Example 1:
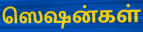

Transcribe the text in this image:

ஸெஷன்கள்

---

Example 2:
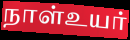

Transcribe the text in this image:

நாள்உயர்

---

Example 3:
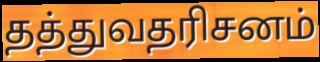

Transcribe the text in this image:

தத்துவதரிசனம்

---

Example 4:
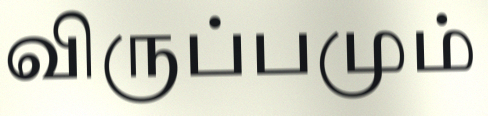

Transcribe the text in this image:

விருப்பமும்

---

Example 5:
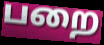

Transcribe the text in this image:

பறை